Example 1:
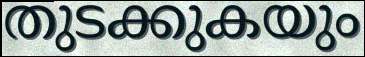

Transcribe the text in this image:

തുടക്കുകയും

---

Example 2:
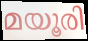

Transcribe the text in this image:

മയൂരി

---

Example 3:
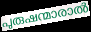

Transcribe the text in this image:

പുരുഷന്മാരാൽ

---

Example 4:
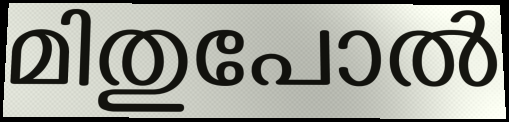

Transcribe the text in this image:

മിതുപോൽ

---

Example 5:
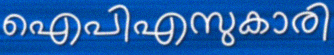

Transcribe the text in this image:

ഐപിഎസുകാരി